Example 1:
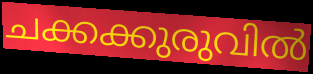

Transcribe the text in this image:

ചക്കക്കുരുവിൽ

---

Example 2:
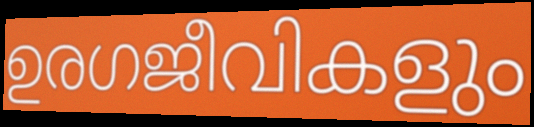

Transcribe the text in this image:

ഉരഗജീവികളും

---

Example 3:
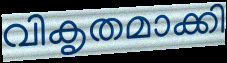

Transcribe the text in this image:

വികൃതമാക്കി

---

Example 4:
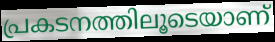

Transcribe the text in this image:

പ്രകടനത്തിലൂടെയാണ്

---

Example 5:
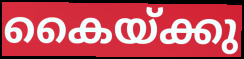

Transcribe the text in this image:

കൈയ്ക്കു